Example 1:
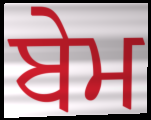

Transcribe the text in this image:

ਬੇਮ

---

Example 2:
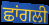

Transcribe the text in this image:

ਛਾਂਗਲੀ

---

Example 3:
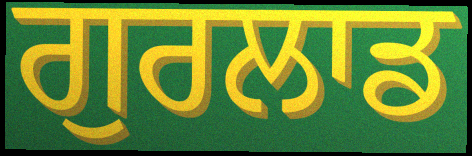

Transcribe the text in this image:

ਗੁਰਲਾਡ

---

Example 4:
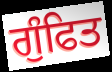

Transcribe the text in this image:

ਗੁੰਫਿਤ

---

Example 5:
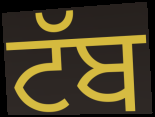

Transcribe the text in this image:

ਟੱਬ